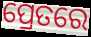
ପ୍ରେତରେ